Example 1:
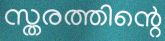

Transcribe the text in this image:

സ്തരത്തിന്റെ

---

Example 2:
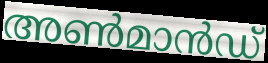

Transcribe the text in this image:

അൺമാൻഡ്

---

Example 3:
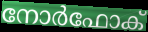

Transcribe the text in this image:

നോർഫോക്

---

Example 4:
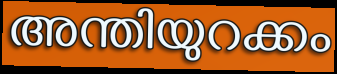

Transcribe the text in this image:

അന്തിയുറക്കം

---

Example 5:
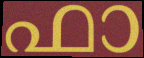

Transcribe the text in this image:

ഫാ